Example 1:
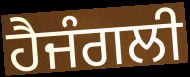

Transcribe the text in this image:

ਹੈਜੰਗਲੀ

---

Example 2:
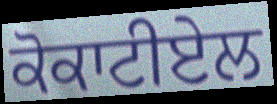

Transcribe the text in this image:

ਕੋਕਾਟੀਏਲ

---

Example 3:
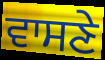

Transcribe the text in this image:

ਵਾਸਣੇ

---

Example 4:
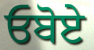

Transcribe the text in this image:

ਓਬੋਏ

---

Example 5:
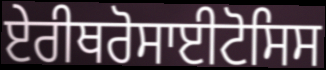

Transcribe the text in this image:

ਏਰੀਥਰੋਸਾਈਟੋਸਿਸ